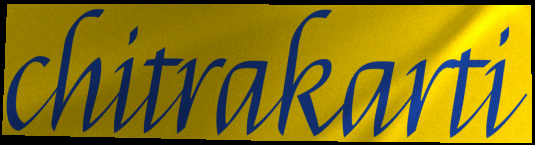
chitrakarti